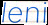
leni